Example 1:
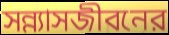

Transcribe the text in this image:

সন্ন্যাসজীবনের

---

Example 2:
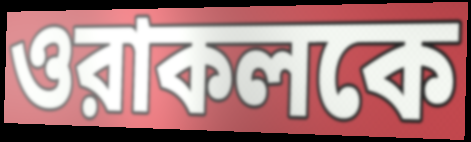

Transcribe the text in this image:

ওরাকলকে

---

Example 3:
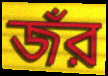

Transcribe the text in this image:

জঁর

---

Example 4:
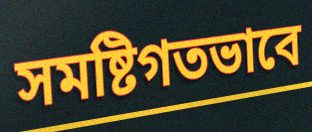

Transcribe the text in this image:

সমষ্টিগতভাবে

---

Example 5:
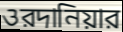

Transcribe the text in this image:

ওরদানিয়ার